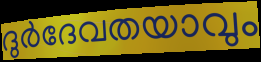
ദുർദേവതയാവും